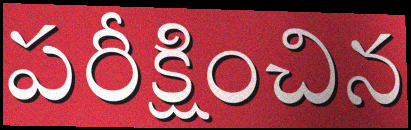
పరీక్షించిన